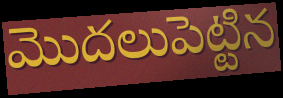
మొదలుపెట్టిన